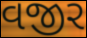
વજીર